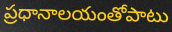
ప్రధానాలయంతోపాటు